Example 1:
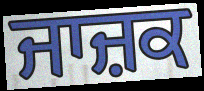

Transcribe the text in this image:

ਜਾਜ਼ਕ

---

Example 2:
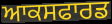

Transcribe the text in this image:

ਆਕਸਫਾਰਡ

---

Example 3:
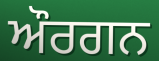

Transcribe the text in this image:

ਔਰਗਨ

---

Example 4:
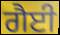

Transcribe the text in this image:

ਗੈਈ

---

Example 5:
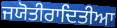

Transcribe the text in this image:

ਜਯੋਤੀਰਾਦਿਤੀਆ